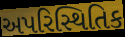
અપરિસ્થિતિક